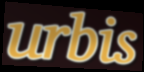
urbis